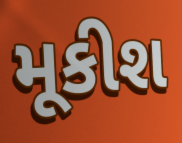
મૂકીશ